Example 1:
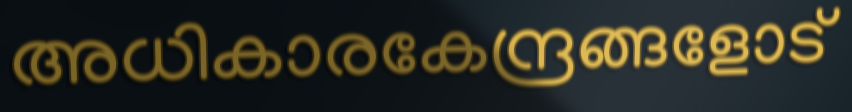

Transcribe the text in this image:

അധികാരകേന്ദ്രങ്ങളോട്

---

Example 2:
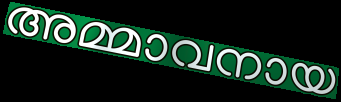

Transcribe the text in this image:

അമ്മാവനായ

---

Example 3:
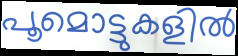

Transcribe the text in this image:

പൂമൊട്ടുകളിൽ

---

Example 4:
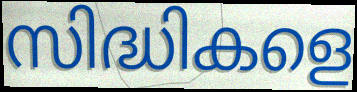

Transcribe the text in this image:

സിദ്ധികളെ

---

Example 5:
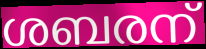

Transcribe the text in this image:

ശബരന്